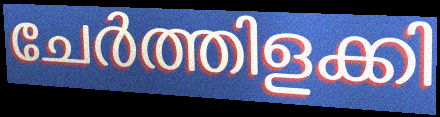
ചേർത്തിളക്കി